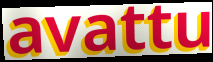
avattu